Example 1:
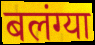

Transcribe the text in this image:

बलंग्या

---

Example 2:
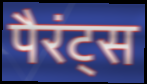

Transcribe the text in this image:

पैरंट्स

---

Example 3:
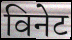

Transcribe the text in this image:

विनेट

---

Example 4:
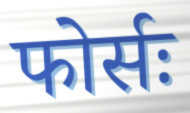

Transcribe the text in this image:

फोर्सः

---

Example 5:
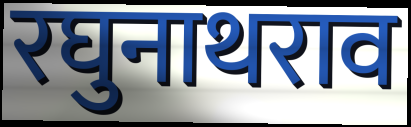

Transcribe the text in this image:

रघुनाथराव